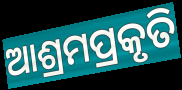
ଆଶ୍ରମପ୍ରକୃତି